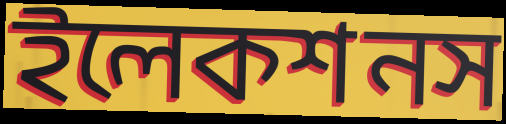
ইলেকশনস